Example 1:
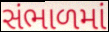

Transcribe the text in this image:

સંભાળમાં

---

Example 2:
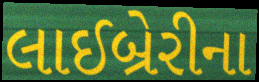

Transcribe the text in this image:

લાઈબ્રેરીના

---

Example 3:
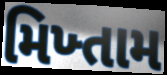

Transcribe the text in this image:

મિખ્તામ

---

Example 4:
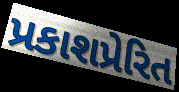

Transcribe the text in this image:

પ્રકાશપ્રેરિત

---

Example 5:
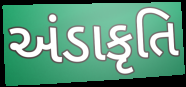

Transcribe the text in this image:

અંડાકૃતિ